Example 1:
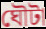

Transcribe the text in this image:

ঘৌটা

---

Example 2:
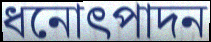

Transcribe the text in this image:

ধনোৎপাদন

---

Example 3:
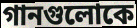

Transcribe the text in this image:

গানগুলোকে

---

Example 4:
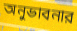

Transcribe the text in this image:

অনুভাবনার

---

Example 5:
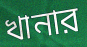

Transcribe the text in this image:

খানার